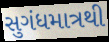
સુગંધમાત્રથી